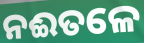
ନଈତଳେ